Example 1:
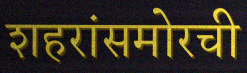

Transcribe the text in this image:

शहरांसमोरची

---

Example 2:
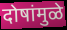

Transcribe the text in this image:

दोषांमुळे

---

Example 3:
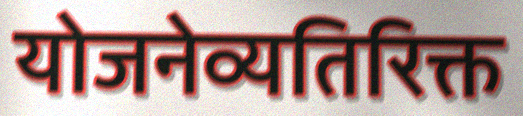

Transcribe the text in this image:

योजनेव्यतिरिक्त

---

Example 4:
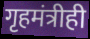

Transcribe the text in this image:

गृहमंत्रीही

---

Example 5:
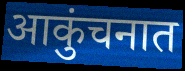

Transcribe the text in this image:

आकुंचनात